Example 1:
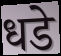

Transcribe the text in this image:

धडे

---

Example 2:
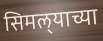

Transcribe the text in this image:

सिमल्याच्या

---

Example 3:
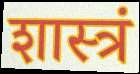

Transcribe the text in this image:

शास्त्रं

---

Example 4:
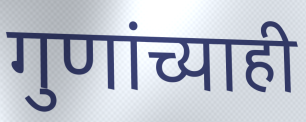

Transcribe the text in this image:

गुणांच्याही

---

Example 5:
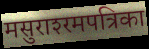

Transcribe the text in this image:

मसुराश्रमपत्रिका